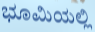
ಭೂಮಿಯಲ್ಲಿ